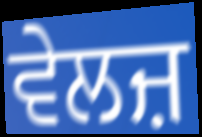
ਵੇਲਜ਼